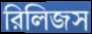
রিলিজস